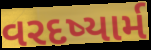
વરદષ્યાર્મ